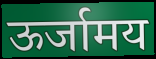
ऊर्जामय